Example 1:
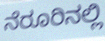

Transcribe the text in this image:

ನೆರೂರಿನಲ್ಲಿ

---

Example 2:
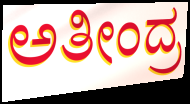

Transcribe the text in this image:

ಅತೀಂದ್ರ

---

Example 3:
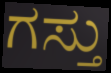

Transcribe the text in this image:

ಗಸ್ತು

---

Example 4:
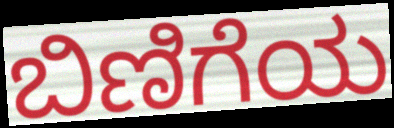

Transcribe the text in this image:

ಬಿಣಿಗೆಯ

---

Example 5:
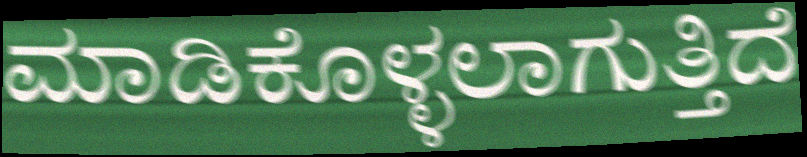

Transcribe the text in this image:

ಮಾಡಿಕೊಳ್ಳಲಾಗುತ್ತಿದೆ